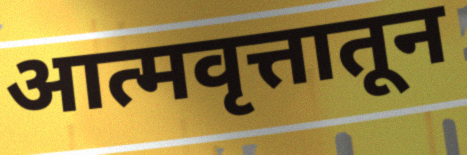
आत्मवृत्तातून